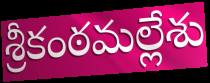
శ్రీకంఠమల్లేశు